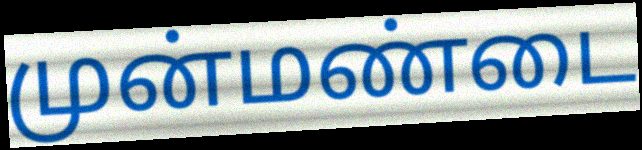
முன்மண்டை